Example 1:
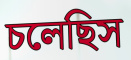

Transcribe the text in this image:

চলেছিস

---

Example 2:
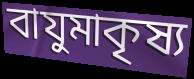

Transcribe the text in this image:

বাযুমাকৃষ্য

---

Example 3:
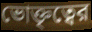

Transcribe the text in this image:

ভোক্তৃত্বের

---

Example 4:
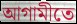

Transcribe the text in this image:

আগামীতে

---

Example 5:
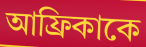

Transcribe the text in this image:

আফ্রিকাকে